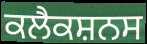
ਕਲੈਕਸ਼ਨਸ